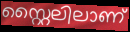
സ്റ്റൈലിലാണ്